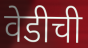
वेडीची